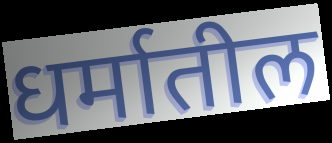
धर्मातील